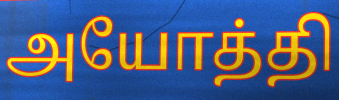
அயோத்தி